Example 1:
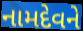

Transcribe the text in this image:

નામદેવને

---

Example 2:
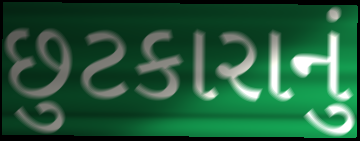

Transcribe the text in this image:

છુટકારાનું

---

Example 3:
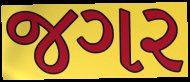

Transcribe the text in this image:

જગર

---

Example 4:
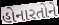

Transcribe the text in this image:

હોનારતોને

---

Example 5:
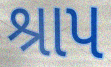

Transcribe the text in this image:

શ્રાપ